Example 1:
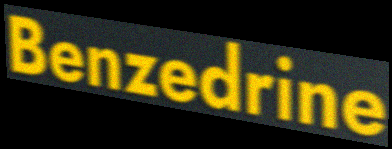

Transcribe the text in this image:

Benzedrine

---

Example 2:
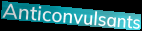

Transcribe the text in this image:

Anticonvulsants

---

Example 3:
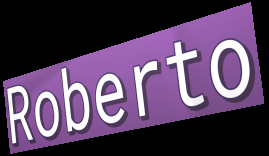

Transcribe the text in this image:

Roberto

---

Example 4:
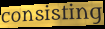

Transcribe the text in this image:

consisting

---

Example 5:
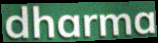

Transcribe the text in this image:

dharma